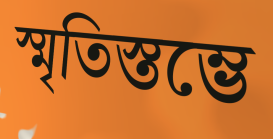
স্মৃতিস্তম্ভে